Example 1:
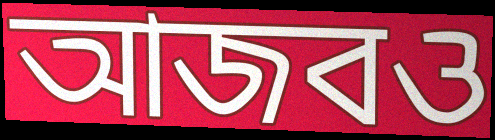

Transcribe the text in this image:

আজবও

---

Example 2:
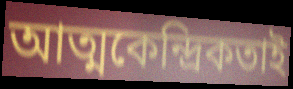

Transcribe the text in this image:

আত্মকেন্দ্রিকতাই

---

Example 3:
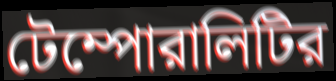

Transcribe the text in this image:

টেম্পোরালিটির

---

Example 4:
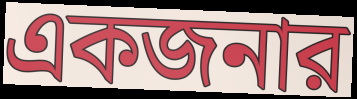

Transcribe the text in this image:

একজনার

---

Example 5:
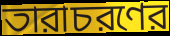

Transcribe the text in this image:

তারাচরণের